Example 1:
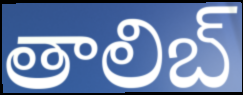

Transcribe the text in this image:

తాలిబ్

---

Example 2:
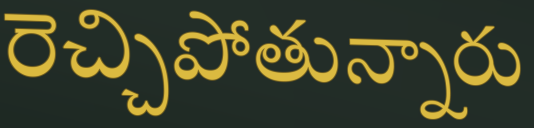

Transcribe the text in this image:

రెచ్చిపోతున్నారు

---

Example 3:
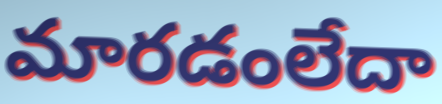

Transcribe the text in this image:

మారడంలేదా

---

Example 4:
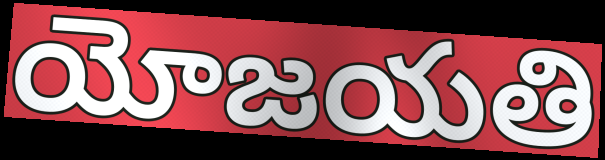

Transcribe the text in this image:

యోజయతి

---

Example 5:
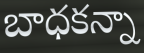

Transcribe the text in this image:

బాధకన్నా